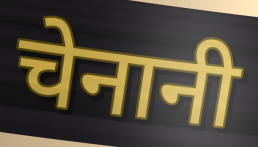
चेनानी